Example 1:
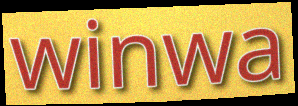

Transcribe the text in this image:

winwa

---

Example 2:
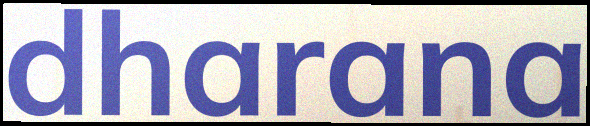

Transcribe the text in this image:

dharana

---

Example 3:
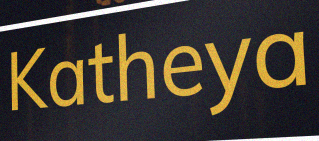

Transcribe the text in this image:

Katheya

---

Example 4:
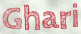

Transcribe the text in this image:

Ghari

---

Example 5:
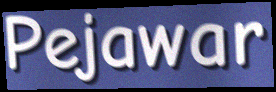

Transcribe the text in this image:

Pejawar